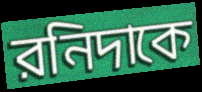
রনিদাকে